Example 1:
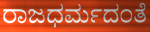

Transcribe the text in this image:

ರಾಜಧರ್ಮದಂತೆ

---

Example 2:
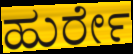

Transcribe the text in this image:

ಹುರ್ರೇ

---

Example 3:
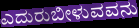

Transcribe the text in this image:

ಎದುರುಬೀಳುವವನು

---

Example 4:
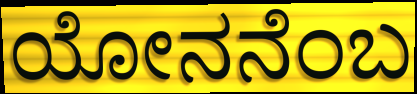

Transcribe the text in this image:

ಯೋನನೆಂಬ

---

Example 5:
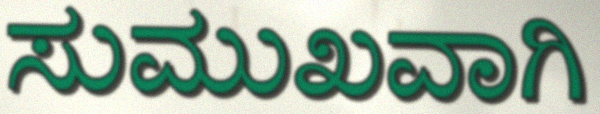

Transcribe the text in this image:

ಸುಮುಖವಾಗಿ